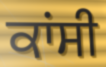
ਕਾਂਸੀ